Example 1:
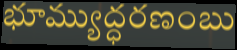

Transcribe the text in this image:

భూమ్యుద్ధరణంబు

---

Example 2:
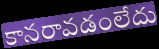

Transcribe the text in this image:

కానరావడంలేదు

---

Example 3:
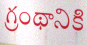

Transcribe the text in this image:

గ్రంథానికి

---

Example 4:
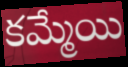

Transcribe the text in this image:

కమ్మేయి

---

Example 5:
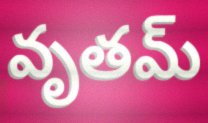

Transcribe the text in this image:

వృతమ్